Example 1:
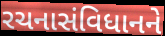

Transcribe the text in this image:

રચનાસંવિધાનને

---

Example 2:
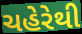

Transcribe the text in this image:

ચહેરેથી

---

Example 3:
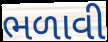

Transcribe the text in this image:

ભળાવી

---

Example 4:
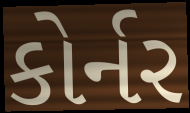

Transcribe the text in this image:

કોર્નર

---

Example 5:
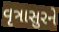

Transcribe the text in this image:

વૃત્રાસુરને